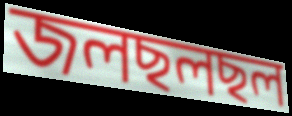
জলছলছল